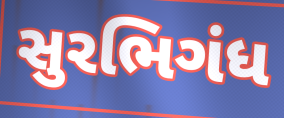
સુરભિગંધ